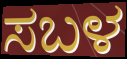
ಸಬಳ